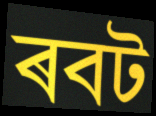
ৰবট